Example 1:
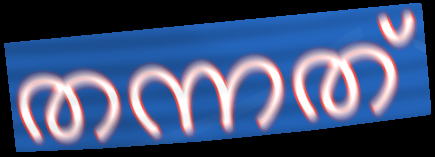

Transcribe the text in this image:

തന്നത്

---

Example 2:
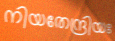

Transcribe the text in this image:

നിയതേന്ദ്രിയഃ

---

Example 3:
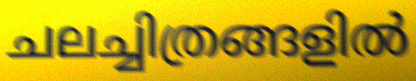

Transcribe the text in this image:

ചലച്ചിത്രങ്ങളിൽ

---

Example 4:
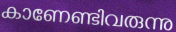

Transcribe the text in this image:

കാണേണ്ടിവരുന്നു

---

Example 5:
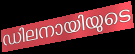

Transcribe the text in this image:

ഡിലനായിയുടെ